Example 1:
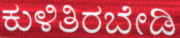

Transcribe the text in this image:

ಕುಳಿತಿರಬೇಡಿ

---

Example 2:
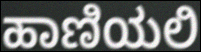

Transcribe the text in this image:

ಹಾಣಿಯಲಿ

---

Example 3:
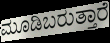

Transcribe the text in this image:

ಮೂಡಿಬರುತ್ತಾರೆ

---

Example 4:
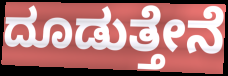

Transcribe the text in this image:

ದೂಡುತ್ತೇನೆ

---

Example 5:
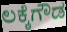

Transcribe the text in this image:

ಲಕ್ಕೆಗೌಡ